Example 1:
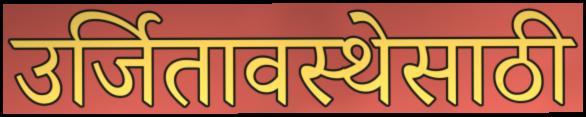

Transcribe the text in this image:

उर्जितावस्थेसाठी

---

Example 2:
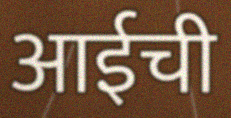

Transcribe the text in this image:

आईची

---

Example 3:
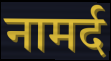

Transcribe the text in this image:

नामर्द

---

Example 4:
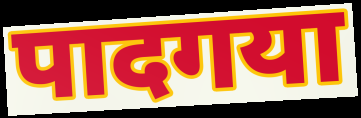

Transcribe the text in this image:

पादगया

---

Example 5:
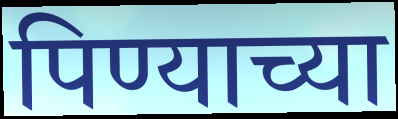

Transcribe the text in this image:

पिण्याच्या